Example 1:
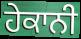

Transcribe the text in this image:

ਹੇਕਾਨੀ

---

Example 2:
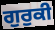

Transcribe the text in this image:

ਗੁਰੁਕੀ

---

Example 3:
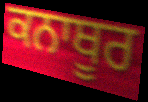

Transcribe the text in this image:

ਕਨਾਥੂਰ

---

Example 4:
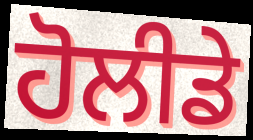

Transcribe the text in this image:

ਹੋਲੀਡੇ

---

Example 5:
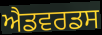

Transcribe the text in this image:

ਐਡਵਰਡਸ